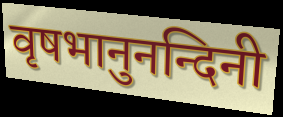
वृषभानुनन्दिनी